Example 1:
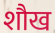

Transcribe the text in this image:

शौख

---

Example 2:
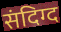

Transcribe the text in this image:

संदिग्द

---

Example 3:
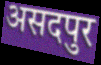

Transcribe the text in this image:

असदपुर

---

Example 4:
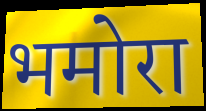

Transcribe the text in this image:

भमोरा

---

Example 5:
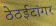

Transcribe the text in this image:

ठेठईटांगर